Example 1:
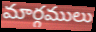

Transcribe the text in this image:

మార్గములు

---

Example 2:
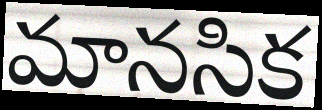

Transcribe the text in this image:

మానసిక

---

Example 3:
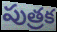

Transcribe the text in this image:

పుత్రక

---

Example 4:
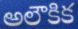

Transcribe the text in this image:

అలౌకిక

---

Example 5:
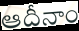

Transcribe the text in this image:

ఆదీనాం